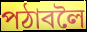
পঠাবলৈ